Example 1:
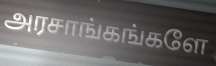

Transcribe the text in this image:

அரசாங்கங்களே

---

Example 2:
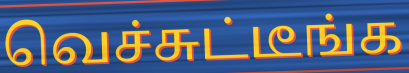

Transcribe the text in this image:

வெச்சுட்டீங்க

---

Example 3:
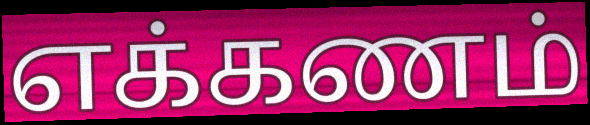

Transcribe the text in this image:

எக்கணம்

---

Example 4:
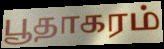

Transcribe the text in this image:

பூதாகரம்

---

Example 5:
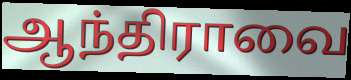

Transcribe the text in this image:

ஆந்திராவை